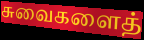
சுவைகளைத்